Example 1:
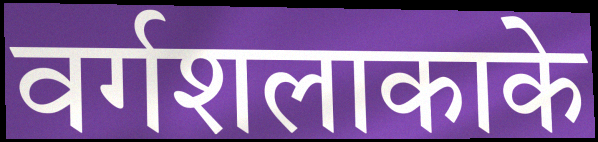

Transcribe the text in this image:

वर्गशलाकाके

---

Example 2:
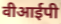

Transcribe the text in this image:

वीआईपी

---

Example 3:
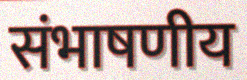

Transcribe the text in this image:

संभाषणीय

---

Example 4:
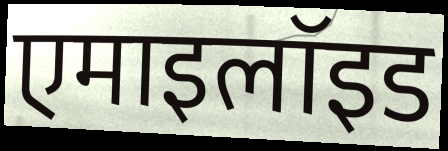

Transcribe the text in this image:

एमाइलॉइड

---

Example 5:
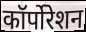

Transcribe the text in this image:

कॉर्पोरेशन